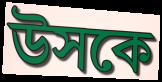
উসকে